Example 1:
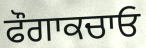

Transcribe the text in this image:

ਫੌਗਾਕਚਾਓ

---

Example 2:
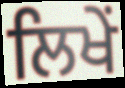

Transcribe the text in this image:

ਲਿਖੇਂ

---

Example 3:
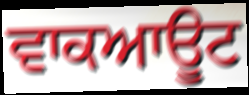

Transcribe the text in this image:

ਵਾਕਆਊਟ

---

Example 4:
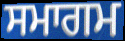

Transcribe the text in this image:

ਸਮਾਗਮ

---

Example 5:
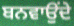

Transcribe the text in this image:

ਬਨਵਾਉਂਦੇ